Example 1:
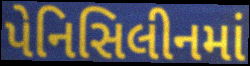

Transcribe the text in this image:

પેનિસિલીનમાં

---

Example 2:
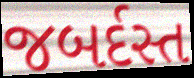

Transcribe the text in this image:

જબર્દસ્ત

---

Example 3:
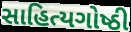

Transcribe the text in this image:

સાહિત્યગોષ્ઠી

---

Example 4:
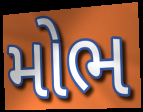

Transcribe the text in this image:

મોભ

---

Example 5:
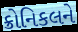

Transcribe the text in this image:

ક્રોનિકલને